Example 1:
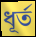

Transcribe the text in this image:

ধূর্ত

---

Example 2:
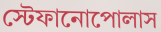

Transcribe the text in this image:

স্টেফানোপোলাস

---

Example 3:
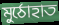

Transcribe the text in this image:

মুঠোহাত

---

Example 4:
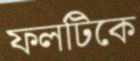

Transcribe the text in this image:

ফলটিকে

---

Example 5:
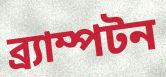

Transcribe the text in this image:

ব্র্যাম্পটন